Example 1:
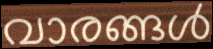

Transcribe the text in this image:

വാരങ്ങൾ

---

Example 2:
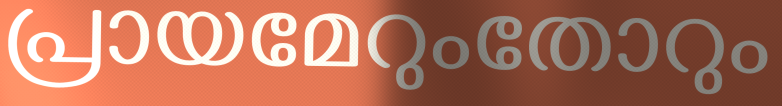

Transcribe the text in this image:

പ്രായമേറുംതോറും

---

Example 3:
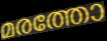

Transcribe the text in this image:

മരത്തോ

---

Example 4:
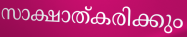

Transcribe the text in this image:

സാക്ഷാത്കരിക്കും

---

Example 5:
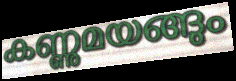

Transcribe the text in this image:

കണ്ണുമയങ്ങും